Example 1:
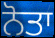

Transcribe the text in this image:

ਨੋਤਾ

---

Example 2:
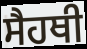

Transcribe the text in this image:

ਸੈਹਥੀ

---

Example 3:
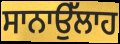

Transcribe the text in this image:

ਸਾਨਾਉੱਲਾਹ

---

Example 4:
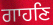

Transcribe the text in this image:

ਗਾਹਣਿ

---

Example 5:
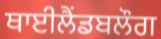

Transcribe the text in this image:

ਥਾਈਲੈਂਡਬਲੌਗ